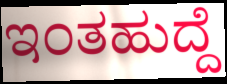
ಇಂತಹುದ್ದೆ